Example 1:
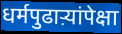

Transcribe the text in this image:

धर्मपुढाऱ्‍यांपेक्षा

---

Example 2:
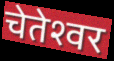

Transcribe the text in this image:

चेतेश्वर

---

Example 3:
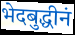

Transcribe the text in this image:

भेदबुद्धीनं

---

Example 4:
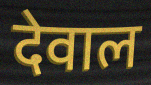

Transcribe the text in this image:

देवाल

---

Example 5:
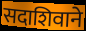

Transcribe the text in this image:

सदाशिवाने